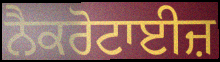
ਨੈਕਰੋਟਾਈਜ਼